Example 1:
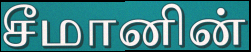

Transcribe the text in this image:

சீமானின்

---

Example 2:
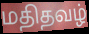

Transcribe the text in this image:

மதிதவழ்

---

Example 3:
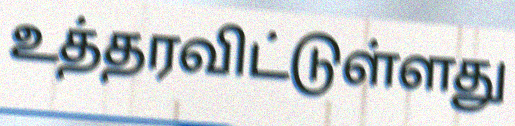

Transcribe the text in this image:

உத்தரவிட்டுள்ளது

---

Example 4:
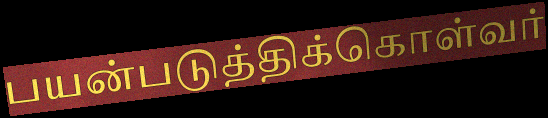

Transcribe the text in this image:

பயன்படுத்திக்கொள்வர்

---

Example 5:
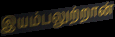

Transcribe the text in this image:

இயம்பலுற்றான்